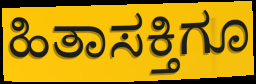
ಹಿತಾಸಕ್ತಿಗೂ